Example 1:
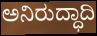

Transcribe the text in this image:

ಅನಿರುದ್ಧಾದಿ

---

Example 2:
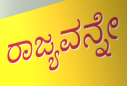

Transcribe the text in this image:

ರಾಜ್ಯವನ್ನೇ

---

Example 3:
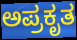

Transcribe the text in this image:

ಅಪ್ರಕೃತ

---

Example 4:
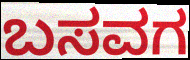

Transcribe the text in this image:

ಬಸವಗ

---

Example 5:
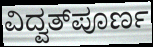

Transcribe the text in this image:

ವಿದ್ವತ್‌ಪೂರ್ಣ